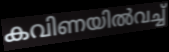
കവിണയിൽവച്ച്